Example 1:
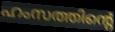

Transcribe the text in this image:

ഹംസത്തിന്റെ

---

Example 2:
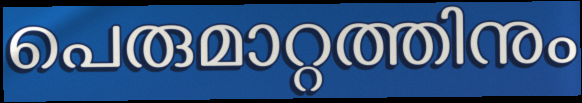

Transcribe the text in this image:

പെരുമാറ്റത്തിനും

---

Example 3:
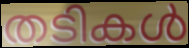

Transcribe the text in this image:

തടികൾ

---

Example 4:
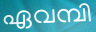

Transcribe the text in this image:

ഏവമ്പി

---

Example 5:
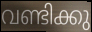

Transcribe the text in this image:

വണ്ടിക്കു